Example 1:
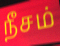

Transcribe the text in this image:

நீசம்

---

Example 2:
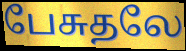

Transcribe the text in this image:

பேசுதலே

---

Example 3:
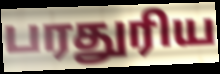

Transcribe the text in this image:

பரதுரிய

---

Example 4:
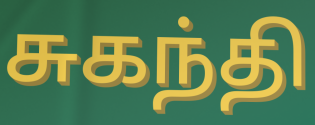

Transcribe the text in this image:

சுகந்தி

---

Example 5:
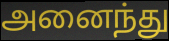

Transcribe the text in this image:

அனைந்து